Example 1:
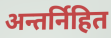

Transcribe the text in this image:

अन्तर्निहित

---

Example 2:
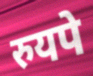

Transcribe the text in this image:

रुयपे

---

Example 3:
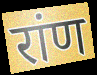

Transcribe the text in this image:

रांण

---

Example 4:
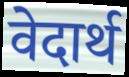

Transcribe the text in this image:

वेदार्थ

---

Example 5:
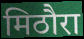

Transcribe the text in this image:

मिठौरा